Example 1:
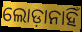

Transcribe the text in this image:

ଲୋଡ଼ାନାହିଁ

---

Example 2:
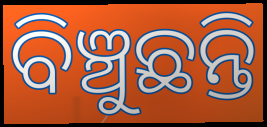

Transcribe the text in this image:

ବିଞ୍ଚୁଛନ୍ତି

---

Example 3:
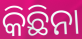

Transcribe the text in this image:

କିଛିନା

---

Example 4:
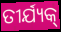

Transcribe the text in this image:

ତୀର୍ଯ୍ୟକ୍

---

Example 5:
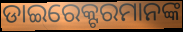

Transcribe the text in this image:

ଡାଇରେକ୍ଟରମାନଙ୍କ